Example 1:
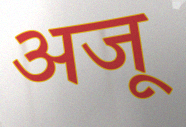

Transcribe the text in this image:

अजू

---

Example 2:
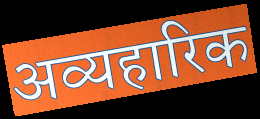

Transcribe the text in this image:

अव्यहारिक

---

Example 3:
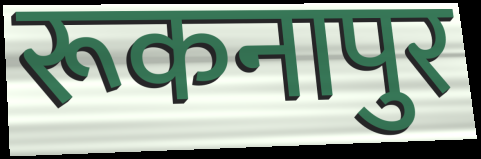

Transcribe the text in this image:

रूकनापुर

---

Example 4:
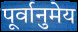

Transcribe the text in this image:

पूर्वानुमेय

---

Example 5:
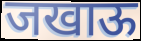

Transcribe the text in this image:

जखाऊ